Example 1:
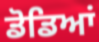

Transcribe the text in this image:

ਡੋਡਿਆਂ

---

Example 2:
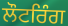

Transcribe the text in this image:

ਲੌਟਰਿੰਗ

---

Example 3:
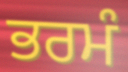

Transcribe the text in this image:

ਭਰਮੰ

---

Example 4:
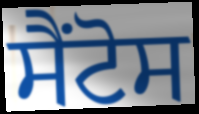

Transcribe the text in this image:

ਸੈਂਟੋਸ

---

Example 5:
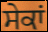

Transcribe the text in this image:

ਸੇਕਾਂ